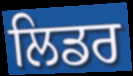
ਲਿਡਰ